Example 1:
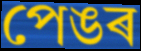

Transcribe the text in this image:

পেঙৰ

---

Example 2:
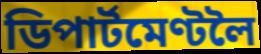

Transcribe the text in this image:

ডিপাৰ্টমেণ্টলৈ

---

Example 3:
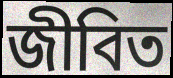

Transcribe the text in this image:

জীবিত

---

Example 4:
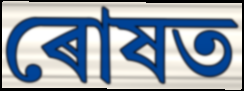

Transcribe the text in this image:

ৰোষত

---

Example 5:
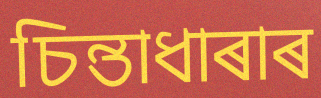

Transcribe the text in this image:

চিন্তাধাৰাৰ